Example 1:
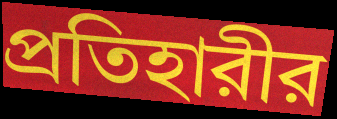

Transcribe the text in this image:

প্রতিহারীর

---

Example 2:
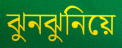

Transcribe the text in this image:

ঝুনঝুনিয়ে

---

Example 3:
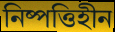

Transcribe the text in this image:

নিষ্পত্তিহীন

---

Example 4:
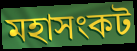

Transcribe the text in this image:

মহাসংকট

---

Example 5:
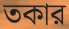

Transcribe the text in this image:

তকার